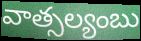
వాత్సల్యంబు